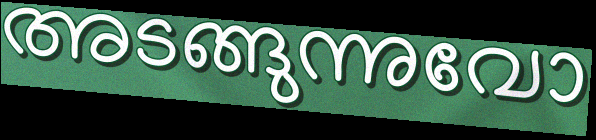
അടങ്ങുന്നുവോ